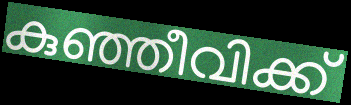
കുഞ്ഞീവിക്ക്